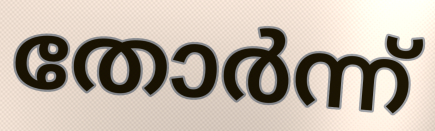
തോർന്ന്